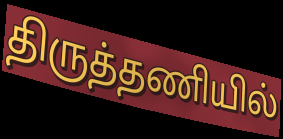
திருத்தணியில்